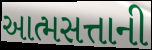
આત્મસત્તાની